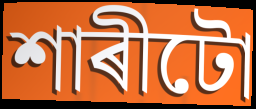
শাৰীটো